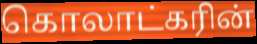
கொலாட்கரின்